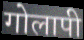
गोलापी